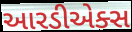
આરડીએક્સ